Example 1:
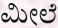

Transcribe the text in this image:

ಮೀಲೆ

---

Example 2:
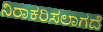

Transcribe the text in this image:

ನಿರಾಕರಿಸಲಾಗದೆ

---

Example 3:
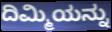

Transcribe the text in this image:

ದಿಮ್ಮಿಯನ್ನು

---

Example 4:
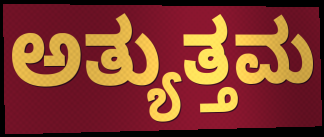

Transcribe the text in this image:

ಅತ್ಯುತ್ತಮ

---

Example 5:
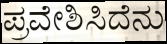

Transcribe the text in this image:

ಪ್ರವೇಶಿಸಿದೆನು